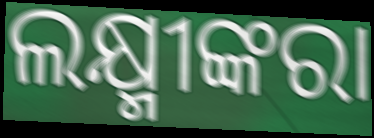
ଲକ୍ଷ୍ମୀଙ୍କରା